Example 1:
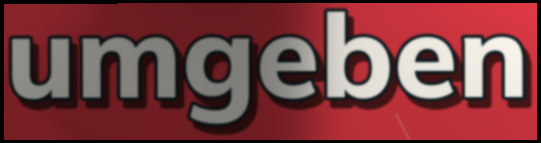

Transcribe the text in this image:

umgeben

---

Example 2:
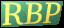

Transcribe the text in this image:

RBP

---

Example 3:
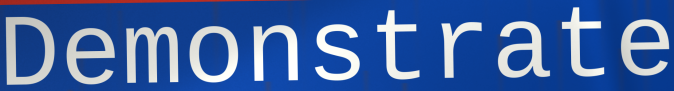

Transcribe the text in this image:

Demonstrate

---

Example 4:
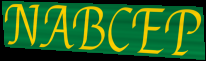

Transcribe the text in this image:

NABCEP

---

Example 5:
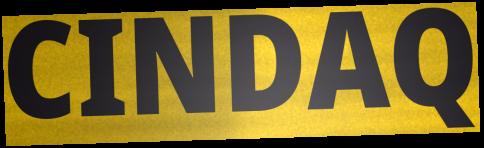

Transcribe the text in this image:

CINDAQ